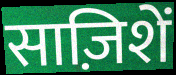
साज़िशें